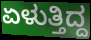
ಏಳುತ್ತಿದ್ದ